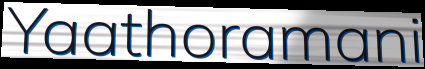
Yaathoramani